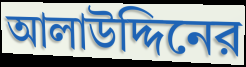
আলাউদ্দিনের